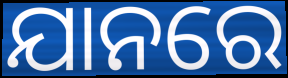
ଯାନରେ